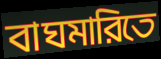
বাঘমারিতে